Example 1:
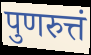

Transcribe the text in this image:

पुणरुत्तं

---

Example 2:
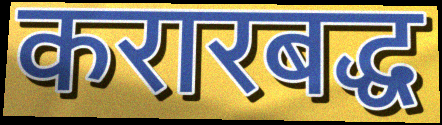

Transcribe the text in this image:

करारबद्ध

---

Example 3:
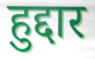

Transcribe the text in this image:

हुद्दार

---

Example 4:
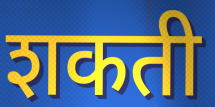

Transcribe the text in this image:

शकती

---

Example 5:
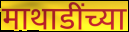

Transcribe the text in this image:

माथाडींच्या